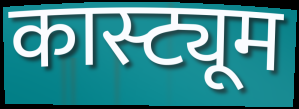
कास्ट्यूम